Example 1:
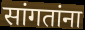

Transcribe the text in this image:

सांगतांना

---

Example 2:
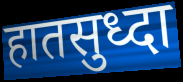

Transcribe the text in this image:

हातसुध्दा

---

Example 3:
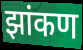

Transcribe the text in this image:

झांकण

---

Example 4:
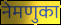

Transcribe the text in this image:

नेमणुका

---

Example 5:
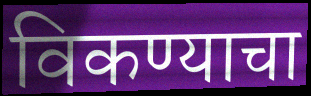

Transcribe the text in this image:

विकण्याचा